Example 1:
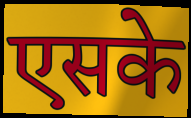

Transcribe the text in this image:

एसके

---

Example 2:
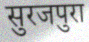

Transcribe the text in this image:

सुरजपुरा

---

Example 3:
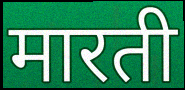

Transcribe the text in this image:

मारती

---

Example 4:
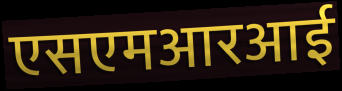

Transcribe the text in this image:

एसएमआरआई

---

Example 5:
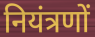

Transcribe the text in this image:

नियंत्रणों